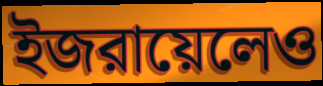
ইজরায়েলেও